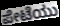
ಪೇಟೆಯು